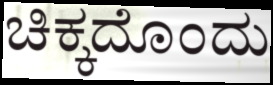
ಚಿಕ್ಕದೊಂದು